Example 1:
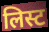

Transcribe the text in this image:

लिस्ट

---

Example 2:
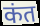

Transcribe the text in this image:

कंत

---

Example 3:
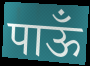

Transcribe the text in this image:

पाऊँ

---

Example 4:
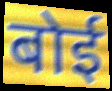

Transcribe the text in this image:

बोई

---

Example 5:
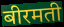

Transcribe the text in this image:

बीरमती